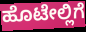
ಹೊಟೇಲ್ಲಿಗೆ